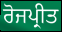
ਰੋਜਪ੍ਰੀਤ